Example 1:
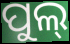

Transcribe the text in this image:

ପୁଲ୍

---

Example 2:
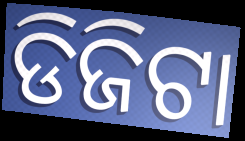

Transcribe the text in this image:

ଡିଜିଟା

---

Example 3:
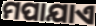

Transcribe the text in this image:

ମପାଯାଏ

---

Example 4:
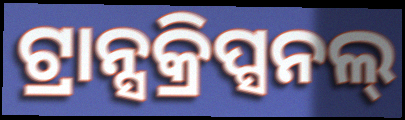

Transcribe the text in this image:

ଟ୍ରାନ୍ସକ୍ରିପ୍ସନଲ୍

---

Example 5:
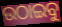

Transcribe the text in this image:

ଉଠାଇବୁ